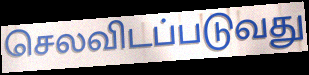
செலவிடப்படுவது